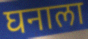
घनाला